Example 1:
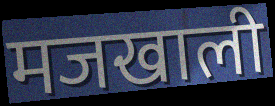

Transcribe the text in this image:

मजखाली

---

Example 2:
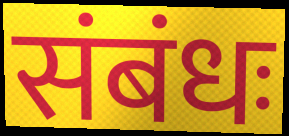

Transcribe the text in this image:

संबंधः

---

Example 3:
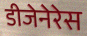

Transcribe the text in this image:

डीजेनेरेस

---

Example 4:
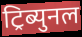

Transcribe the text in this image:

ट्रिब्युनल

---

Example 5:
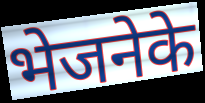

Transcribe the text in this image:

भेजनेके